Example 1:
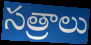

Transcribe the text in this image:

సత్రాలు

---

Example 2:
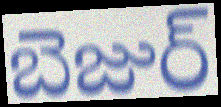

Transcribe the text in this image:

బెజుర్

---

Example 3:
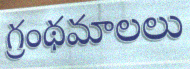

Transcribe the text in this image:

గ్రంథమాలలు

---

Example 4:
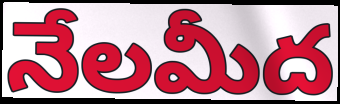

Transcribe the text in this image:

నేలమీద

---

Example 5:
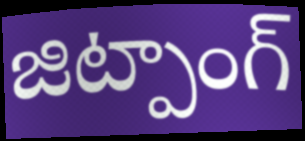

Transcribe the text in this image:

జిట్పాంగ్